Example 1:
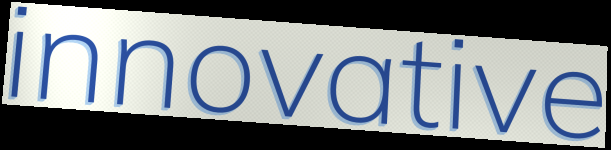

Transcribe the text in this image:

innovative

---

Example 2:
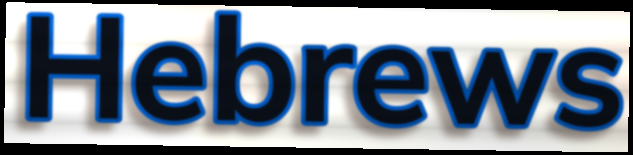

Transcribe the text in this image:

Hebrews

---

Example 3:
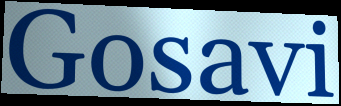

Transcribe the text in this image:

Gosavi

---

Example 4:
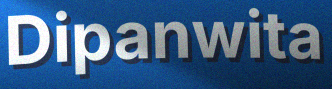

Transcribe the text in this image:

Dipanwita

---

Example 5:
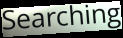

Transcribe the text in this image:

Searching